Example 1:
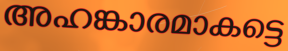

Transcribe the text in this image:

അഹങ്കാരമാകട്ടെ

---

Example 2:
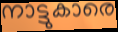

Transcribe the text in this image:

നാട്ടുകാരെ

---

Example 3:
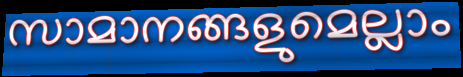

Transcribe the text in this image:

സാമാനങ്ങളുമെല്ലാം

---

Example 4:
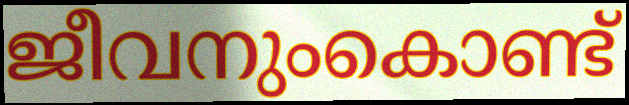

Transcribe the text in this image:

ജീവനുംകൊണ്ട്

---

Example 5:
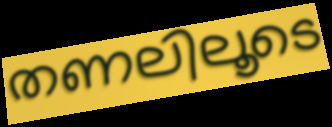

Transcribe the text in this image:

തണലിലൂടെ